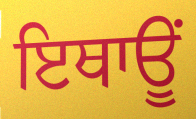
ਇਥਾਊਂ